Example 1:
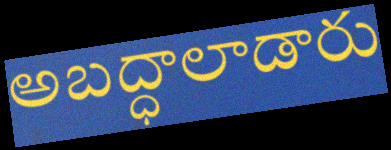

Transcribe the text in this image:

అబద్ధాలాడారు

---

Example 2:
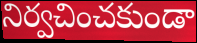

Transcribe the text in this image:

నిర్వచించకుండా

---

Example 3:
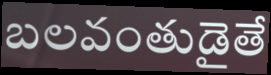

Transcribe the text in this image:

బలవంతుడైతే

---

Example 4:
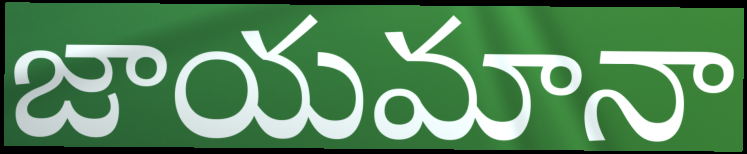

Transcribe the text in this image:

జాయమానా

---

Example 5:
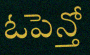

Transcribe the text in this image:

ఓపెన్తో